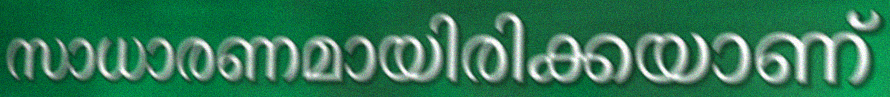
സാധാരണമായിരിക്കയാണ്